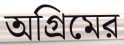
অগ্রিমের